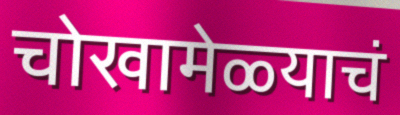
चोखामेळ्याचं